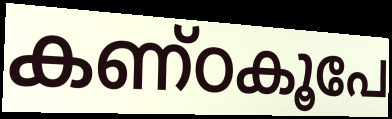
കണ്ഠകൂപേ